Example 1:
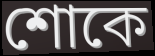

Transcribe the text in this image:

শোকে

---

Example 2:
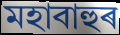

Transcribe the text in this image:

মহাবাহুৰ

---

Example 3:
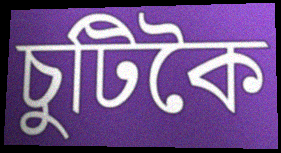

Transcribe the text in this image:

চুটিকৈ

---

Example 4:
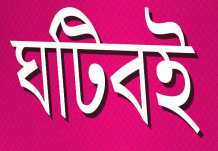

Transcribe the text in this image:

ঘটিবই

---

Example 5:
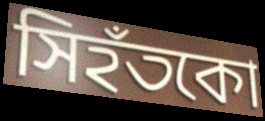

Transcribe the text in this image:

সিহঁতকো